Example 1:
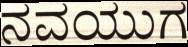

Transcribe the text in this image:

ನವಯುಗ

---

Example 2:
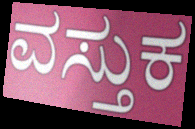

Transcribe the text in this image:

ವಸ್ತುಕ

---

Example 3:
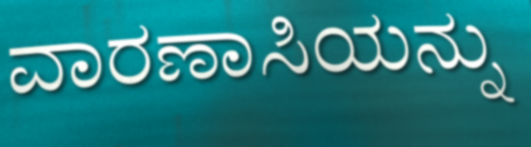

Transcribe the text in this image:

ವಾರಣಾಸಿಯನ್ನು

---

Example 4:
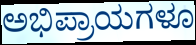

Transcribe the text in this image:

ಅಭಿಪ್ರಾಯಗಳೂ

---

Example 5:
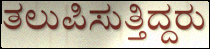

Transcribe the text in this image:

ತಲುಪಿಸುತ್ತಿದ್ದರು